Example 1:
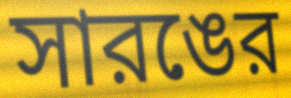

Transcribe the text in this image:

সারঙের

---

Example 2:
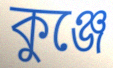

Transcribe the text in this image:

কুঞ্জে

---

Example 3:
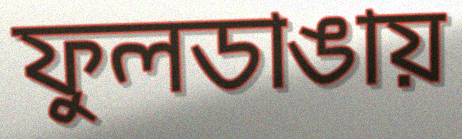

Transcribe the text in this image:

ফুলডাঙায়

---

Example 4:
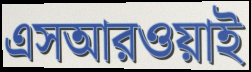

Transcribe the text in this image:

এসআরওয়াই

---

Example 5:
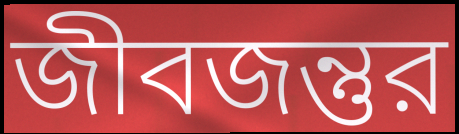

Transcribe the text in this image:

জীবজন্তুর